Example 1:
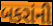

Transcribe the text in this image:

બકરાંની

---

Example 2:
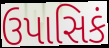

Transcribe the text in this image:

ઉપાસિકં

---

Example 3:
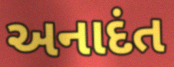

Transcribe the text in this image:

અનાદંત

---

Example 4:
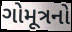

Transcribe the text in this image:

ગોમૂત્રનો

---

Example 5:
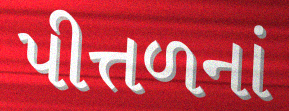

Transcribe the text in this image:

પીત્તળનાં